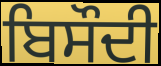
ਬਿਸੌਦੀ